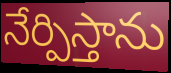
నేర్పిస్తాను